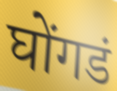
घोंगडं